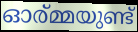
ഓര്മ്മയുണ്ട്